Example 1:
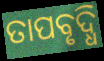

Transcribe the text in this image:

ତାପବୃଦ୍ଧି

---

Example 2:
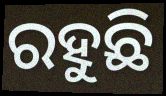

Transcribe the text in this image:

ରହୁଛି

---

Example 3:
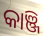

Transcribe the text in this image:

କାଞ୍ଜି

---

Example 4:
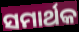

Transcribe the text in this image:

ସମାର୍ଥକ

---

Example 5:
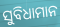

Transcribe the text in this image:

ସୁବିଧାମାନ